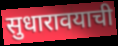
सुधारावयाची